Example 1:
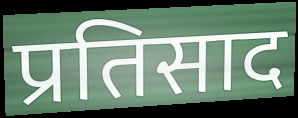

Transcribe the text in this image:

प्रतिसाद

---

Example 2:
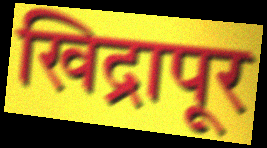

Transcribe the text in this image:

खिद्रापूर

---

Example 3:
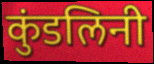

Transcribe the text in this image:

कुंडलिनी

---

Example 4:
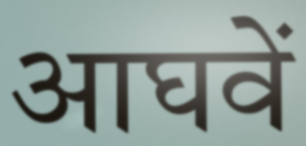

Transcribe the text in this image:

आघवें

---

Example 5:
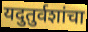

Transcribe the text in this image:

यदुतुर्वशांचा